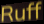
Ruff